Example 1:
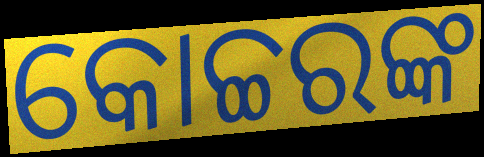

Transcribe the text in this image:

କୋଚ୍ଚରଙ୍କ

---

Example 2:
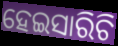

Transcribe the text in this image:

ହେଇସାରିଚି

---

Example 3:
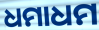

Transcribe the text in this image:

ଧମାଧମ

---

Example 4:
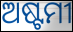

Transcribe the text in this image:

ଅଷ୍ଟମୀ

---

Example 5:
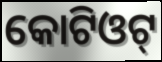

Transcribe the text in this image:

କୋଟିଓଟ୍